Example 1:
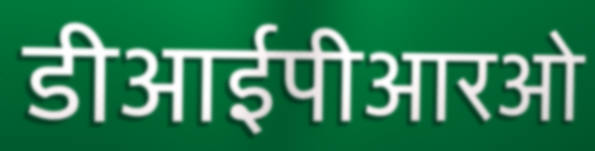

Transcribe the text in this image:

डीआईपीआरओ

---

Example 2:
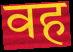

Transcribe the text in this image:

वह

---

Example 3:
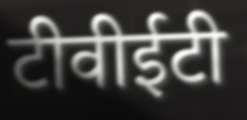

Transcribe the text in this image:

टीवीईटी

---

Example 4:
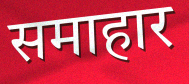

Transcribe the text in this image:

समाहार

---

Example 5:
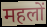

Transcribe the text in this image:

महलों